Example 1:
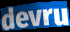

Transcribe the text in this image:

devru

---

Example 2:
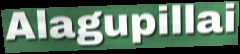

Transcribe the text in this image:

Alagupillai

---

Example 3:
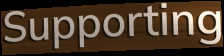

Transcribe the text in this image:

Supporting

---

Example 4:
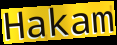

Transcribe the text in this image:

Hakam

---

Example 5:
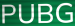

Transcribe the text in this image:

PUBG